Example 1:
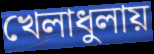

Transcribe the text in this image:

খেলাধুলায়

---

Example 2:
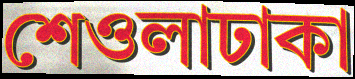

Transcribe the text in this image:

শেওলাঢাকা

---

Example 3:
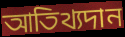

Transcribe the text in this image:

আতিথ্যদান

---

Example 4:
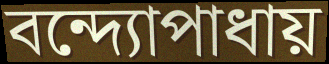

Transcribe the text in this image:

বন্দ্যোপাধায়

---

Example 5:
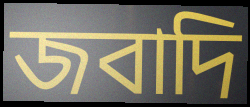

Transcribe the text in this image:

জবাদি